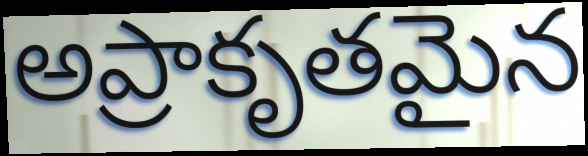
అప్రాకృతమైన